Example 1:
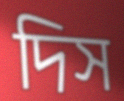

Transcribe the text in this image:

দিস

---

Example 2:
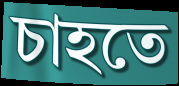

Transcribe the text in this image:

চাহতে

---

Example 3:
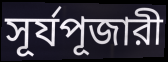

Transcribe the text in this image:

সূর্যপূজারী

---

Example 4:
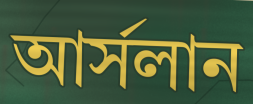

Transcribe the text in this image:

আর্সলান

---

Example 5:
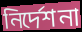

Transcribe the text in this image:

নির্দেশনা